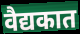
वैद्यकात